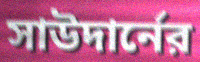
সাউদার্নের